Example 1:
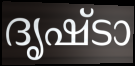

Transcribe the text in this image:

ദൃഷ്ടാ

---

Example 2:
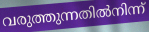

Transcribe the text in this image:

വരുത്തുന്നതിൽനിന്ന്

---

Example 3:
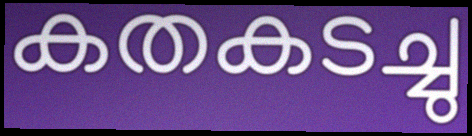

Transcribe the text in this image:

കതകടച്ചു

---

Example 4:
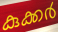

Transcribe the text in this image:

കുക്കർ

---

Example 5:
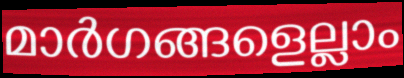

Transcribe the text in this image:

മാർഗങ്ങളെല്ലാം